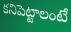
కనిపెట్టాలంటే